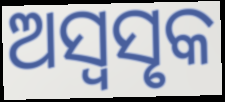
ଅସ୍ୱସୃକ